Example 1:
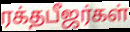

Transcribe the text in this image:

ரக்தபீஜர்கள்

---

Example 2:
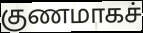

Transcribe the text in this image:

குணமாகச்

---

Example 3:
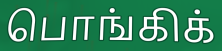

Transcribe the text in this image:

பொங்கிக்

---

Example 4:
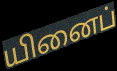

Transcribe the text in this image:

யினைப்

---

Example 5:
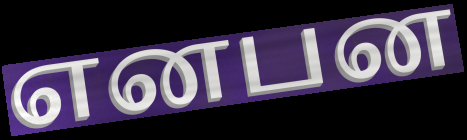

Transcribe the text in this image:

எனபன